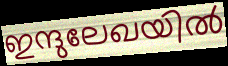
ഇന്ദുലേഖയിൽ